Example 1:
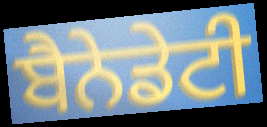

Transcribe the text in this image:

ਬੈਨੇਡੇਟੀ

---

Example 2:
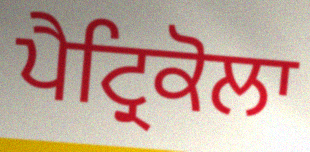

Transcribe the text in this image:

ਪੈਟ੍ਰਿਕੋਲਾ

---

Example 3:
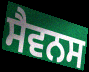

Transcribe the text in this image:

ਸੈਵਨਸ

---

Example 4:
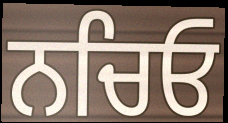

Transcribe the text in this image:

ਨਚਿਓ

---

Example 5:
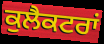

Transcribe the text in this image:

ਕੁਲੈਕਟਰਾਂ